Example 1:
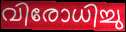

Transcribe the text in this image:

വിരോധിച്ചു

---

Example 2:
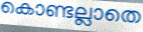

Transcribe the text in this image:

കൊണ്ടല്ലാതെ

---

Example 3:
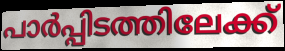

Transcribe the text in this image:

പാർപ്പിടത്തിലേക്ക്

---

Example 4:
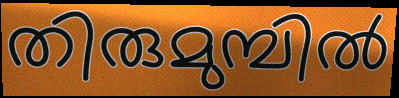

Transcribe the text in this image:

തിരുമുമ്പിൽ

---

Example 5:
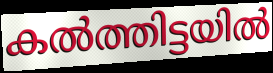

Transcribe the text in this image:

കൽത്തിട്ടയിൽ